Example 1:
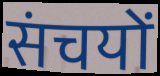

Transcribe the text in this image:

संचयों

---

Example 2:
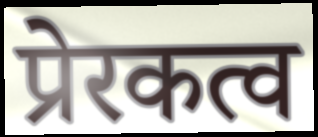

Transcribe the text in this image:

प्रेरकत्व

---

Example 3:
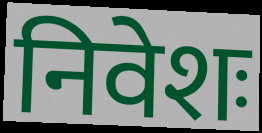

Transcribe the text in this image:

निवेशः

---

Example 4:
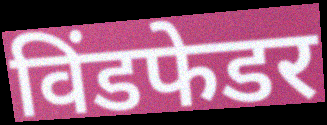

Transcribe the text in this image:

विंडफेडर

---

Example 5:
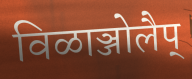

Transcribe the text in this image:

विळाञ्जोलैप्